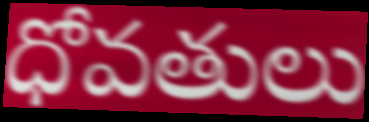
ధోవతులు